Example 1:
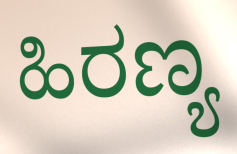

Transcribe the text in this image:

ಹಿರಣ್ಯ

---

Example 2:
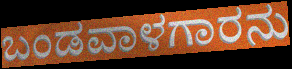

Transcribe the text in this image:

ಬಂಡವಾಳಗಾರನು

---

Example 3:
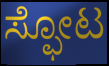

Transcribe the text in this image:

ಸ್ಫೋಟ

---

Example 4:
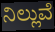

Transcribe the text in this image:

ನಿಲ್ಲುವೆ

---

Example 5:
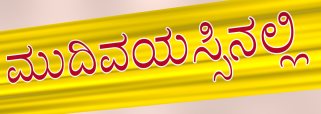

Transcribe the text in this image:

ಮುದಿವಯಸ್ಸಿನಲ್ಲಿ